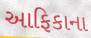
આફિકાના